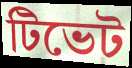
টিভেট